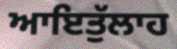
ਆਇਤੁੱਲਾਹ